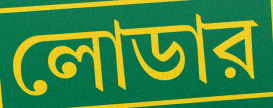
লোডার